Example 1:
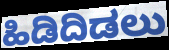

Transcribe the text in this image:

ಹಿಡಿದಿಡಲು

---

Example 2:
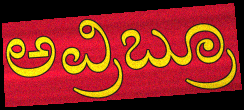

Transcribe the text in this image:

ಅವ್ರಿಬ್ರೂ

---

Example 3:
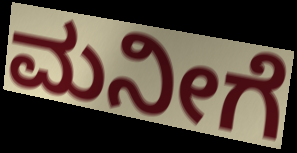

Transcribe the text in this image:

ಮನೀಗೆ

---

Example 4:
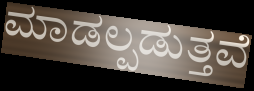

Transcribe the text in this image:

ಮಾಡಲ್ಪಡುತ್ತವೆ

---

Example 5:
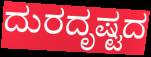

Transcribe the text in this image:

ದುರದೃಷ್ಟದ